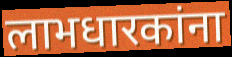
लाभधारकांना